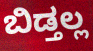
ಬಿಡ್ತಲ್ಲ